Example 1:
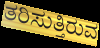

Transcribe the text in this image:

ತರಿಸುತ್ತಿರುವ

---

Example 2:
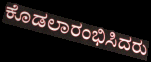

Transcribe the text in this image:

ಕೊಡಲಾರಂಭಿಸಿದರು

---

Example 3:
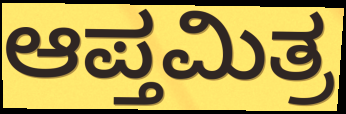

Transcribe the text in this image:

ಆಪ್ತಮಿತ್ರ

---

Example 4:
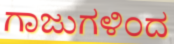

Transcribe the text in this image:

ಗಾಜುಗಳಿಂದ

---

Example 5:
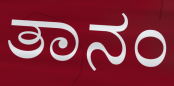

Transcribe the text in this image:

ತಾನಂ